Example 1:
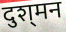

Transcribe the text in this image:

दुश्मन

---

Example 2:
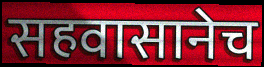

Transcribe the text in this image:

सहवासानेच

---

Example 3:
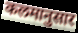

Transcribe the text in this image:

कलमानुसार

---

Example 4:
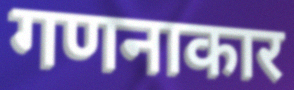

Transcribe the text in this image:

गणनाकार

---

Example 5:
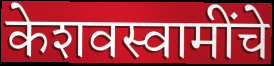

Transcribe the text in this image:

केशवस्वामींचे